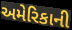
અમેરિકાની